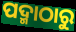
ପଦ୍ମାଠାରୁ